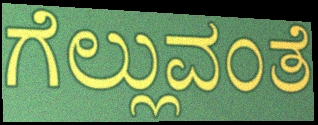
ಗೆಲ್ಲುವಂತೆ